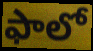
ఫాలో